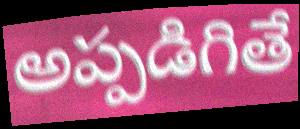
అప్పడిగితే